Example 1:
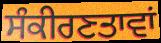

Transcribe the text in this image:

ਸੰਕੀਰਣਤਾਵਾਂ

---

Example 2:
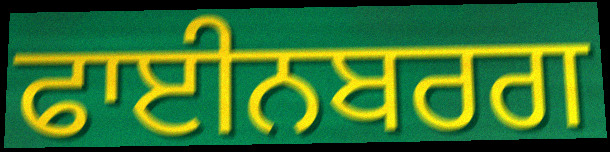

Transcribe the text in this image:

ਫਾਈਨਬਰਗ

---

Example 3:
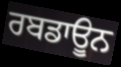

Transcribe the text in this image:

ਰਬਡਾਊਨ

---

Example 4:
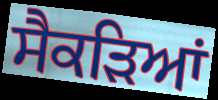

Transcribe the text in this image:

ਸੈਕੜਿਆਂ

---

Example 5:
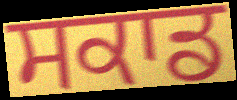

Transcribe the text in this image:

ਸਕਾਡ